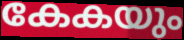
കേകയും